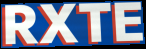
RXTE